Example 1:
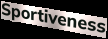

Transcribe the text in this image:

Sportiveness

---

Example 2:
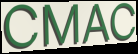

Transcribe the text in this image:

CMAC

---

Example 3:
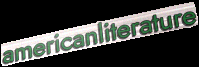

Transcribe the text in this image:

americanliterature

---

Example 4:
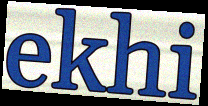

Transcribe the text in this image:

ekhi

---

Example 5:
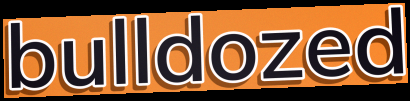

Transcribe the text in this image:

bulldozed